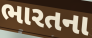
ભારતના